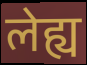
लेह्य